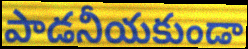
పాడనీయకుండా